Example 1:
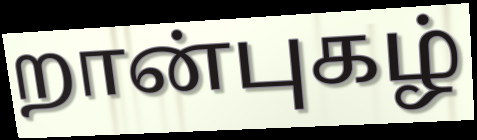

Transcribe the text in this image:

றான்புகழ்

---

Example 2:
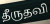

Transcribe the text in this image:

தீருதவி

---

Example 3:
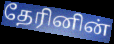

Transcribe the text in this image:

தேரினின்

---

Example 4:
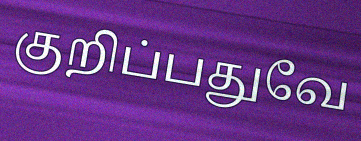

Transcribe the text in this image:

குறிப்பதுவே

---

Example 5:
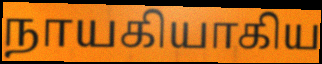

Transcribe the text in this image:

நாயகியாகிய